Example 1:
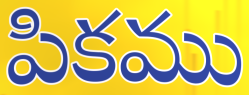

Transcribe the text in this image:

పికము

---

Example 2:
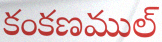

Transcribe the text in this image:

కంకణముల్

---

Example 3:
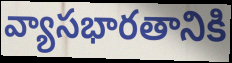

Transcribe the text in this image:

వ్యాసభారతానికి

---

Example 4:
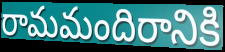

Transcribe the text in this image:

రామమందిరానికి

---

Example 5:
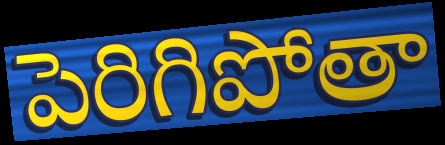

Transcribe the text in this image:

పెరిగిపోతా